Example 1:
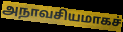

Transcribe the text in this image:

அநாவசியமாகச்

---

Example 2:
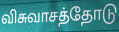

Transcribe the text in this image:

விசுவாசத்தோடு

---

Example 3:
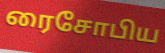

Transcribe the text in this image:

ரைசோபிய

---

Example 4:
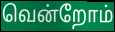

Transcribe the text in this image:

வென்றோம்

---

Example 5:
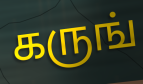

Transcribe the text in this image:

கருங்